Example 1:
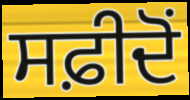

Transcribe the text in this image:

ਸਫ਼ੀਦੋਂ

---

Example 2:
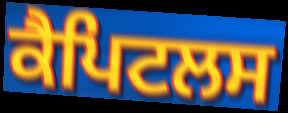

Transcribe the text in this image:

ਕੈਪਿਟਲਸ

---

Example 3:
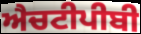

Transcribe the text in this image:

ਐਚਟੀਪੀਬੀ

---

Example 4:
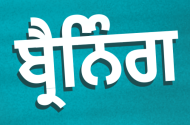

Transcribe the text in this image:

ਬ੍ਰੈਨਿੰਗ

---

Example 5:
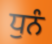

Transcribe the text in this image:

ਧੁਨੰ